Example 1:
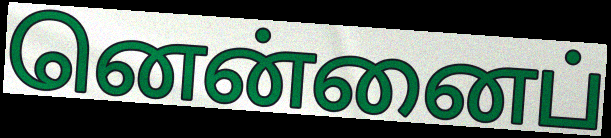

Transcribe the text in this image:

னென்னைப்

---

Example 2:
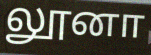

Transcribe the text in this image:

லூனா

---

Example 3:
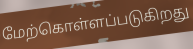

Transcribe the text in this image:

மேற்கொள்ளப்படுகிறது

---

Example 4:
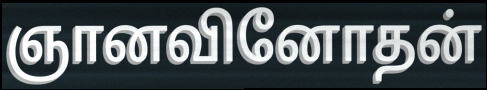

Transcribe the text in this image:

ஞானவினோதன்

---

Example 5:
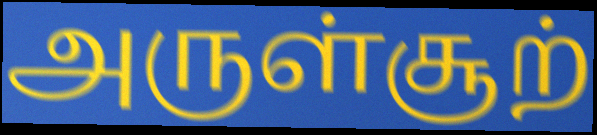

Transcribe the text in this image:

அருள்சூற்